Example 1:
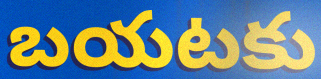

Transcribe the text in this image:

బయటకు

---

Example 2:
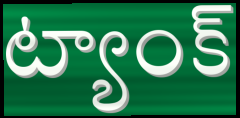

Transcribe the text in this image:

ట్యాంక్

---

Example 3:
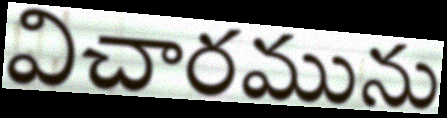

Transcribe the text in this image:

విచారమును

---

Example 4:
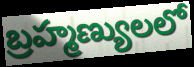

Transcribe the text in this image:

బ్రహ్మణ్యులలో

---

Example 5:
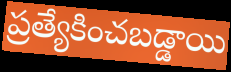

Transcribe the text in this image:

ప్రత్యేకించబడ్డాయి